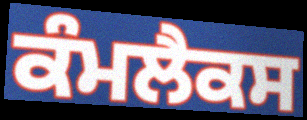
ਕੰਮਲੈਕਸ